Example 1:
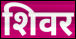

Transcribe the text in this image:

शिवर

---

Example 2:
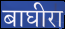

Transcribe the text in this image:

बाघीरा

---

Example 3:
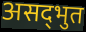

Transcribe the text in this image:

असद्भुत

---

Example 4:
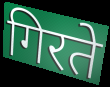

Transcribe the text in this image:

गिरते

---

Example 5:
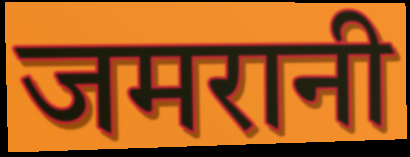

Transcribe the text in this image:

जमरानी